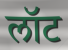
लॉट